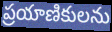
ప్రయాణికులను